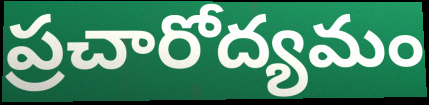
ప్రచారోద్యమం